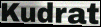
Kudrat